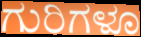
ಗುರಿಗಳೂ